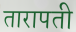
तारापती